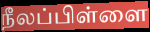
நீலப்பிள்ளை